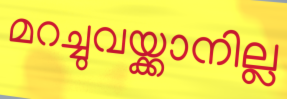
മറച്ചുവയ്ക്കാനില്ല